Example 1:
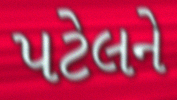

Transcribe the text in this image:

પટેલને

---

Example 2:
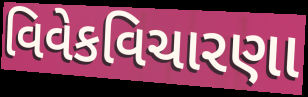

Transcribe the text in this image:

વિવેકવિચારણા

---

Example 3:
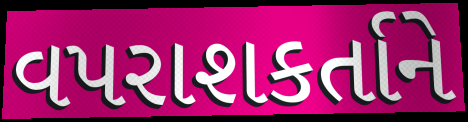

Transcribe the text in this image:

વપરાશકર્તાને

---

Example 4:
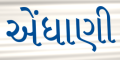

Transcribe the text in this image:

એંધાણી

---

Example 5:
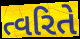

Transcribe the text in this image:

ત્વરિતે